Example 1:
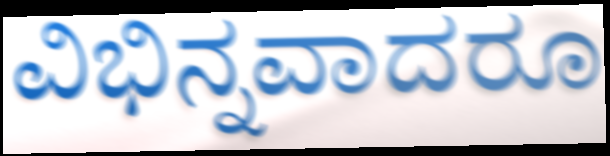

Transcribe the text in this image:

ವಿಭಿನ್ನವಾದರೂ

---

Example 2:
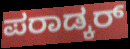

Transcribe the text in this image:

ಪರಾಡ್ಕರ್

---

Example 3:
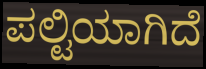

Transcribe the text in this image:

ಪಲ್ಟಿಯಾಗಿದೆ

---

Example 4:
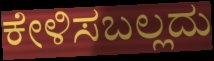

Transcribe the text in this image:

ಕೇಳಿಸಬಲ್ಲದು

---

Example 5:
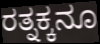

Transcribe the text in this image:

ರತ್ನಕ್ಕನೂ